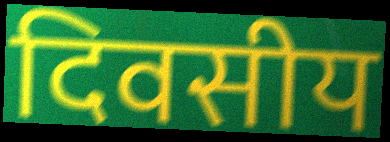
दिवसीय